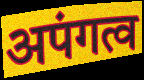
अपंगत्व